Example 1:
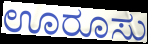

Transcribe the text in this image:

ಊರೂಸು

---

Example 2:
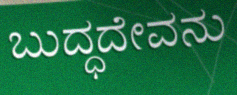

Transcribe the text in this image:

ಬುದ್ಧದೇವನು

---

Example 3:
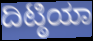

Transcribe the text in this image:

ದಿಟ್ಠಿಯಾ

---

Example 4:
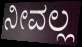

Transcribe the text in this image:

ನೀವಲ್ಲ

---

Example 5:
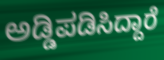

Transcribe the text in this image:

ಅಡ್ಡಿಪಡಿಸಿದ್ದಾರೆ